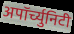
अपॉर्च्युनिटी